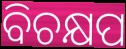
ବିଚକ୍ଷପ